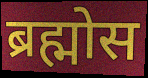
ब्रह्मोस